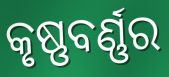
କୃଷ୍ଣବର୍ଣ୍ଣର